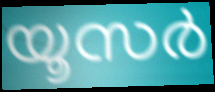
യൂസർ